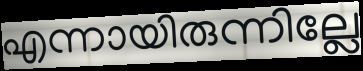
എന്നായിരുന്നില്ലേ